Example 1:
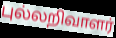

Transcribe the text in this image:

புல்லறிவாளர்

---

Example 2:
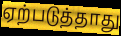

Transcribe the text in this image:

ஏற்படுத்தாது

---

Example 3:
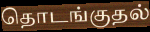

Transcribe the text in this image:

தொடங்குதல்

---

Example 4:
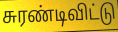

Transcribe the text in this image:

சுரண்டிவிட்டு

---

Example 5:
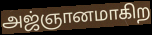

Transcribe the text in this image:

அஜ்ஞானமாகிற